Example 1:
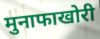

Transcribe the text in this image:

मुनाफाखोरी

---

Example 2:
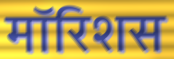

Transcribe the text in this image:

मॉरिशस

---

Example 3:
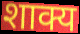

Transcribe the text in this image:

शाक्य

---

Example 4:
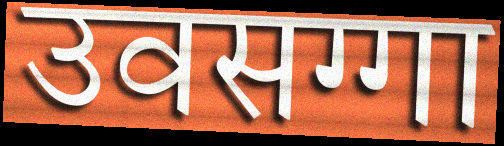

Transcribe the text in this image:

उवसग्गा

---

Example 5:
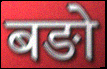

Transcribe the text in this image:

बङो